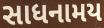
સાધનામય